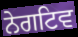
ਨੇਗਟਿਵ